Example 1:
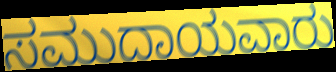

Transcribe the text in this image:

ಸಮುದಾಯವಾರು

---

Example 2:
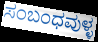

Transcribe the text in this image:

ಸಂಬಂಧವುಳ್ಳ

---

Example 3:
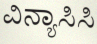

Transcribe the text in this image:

ವಿನ್ಯಾಸಿಸಿ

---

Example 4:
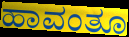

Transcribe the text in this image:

ಹಾವಂತೂ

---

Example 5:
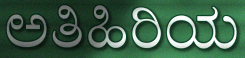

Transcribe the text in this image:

ಅತಿಹಿರಿಯ